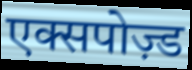
एक्सपोज़्ड